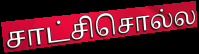
சாட்சிசொல்ல